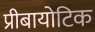
प्रीबायोटिक